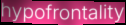
hypofrontality